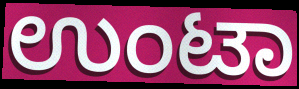
ಉಂಟಾ